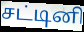
சட்டினி